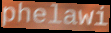
phelawi